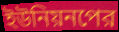
ইউনিয়নপের